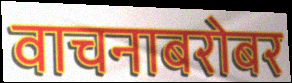
वाचनाबरोबर